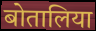
बोतालिया